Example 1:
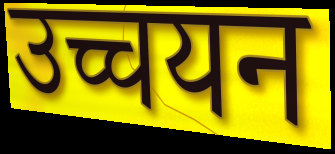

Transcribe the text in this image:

उच्चयन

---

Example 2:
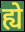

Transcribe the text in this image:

ह्ये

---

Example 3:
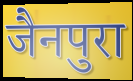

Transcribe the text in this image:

जैनपुरा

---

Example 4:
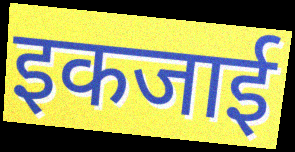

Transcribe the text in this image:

इकजाई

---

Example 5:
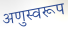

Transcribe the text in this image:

अणुस्वरूप